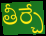
తీర్చే